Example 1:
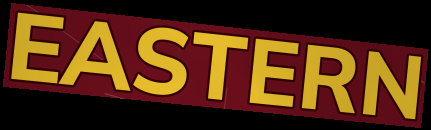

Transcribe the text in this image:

EASTERN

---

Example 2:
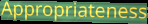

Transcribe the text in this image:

Appropriateness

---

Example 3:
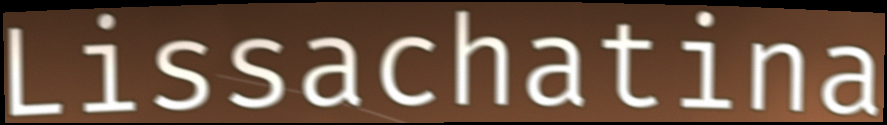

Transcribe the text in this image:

Lissachatina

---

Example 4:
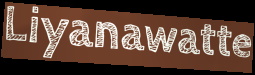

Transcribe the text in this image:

Liyanawatte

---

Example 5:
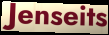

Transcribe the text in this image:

Jenseits